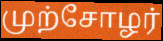
முற்சோழர்